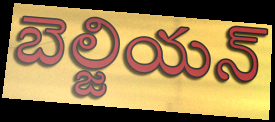
బెల్జియన్